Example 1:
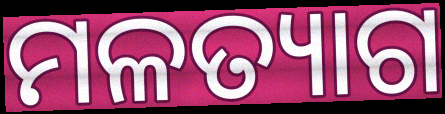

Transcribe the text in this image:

ମଳତ୍ୟାଗ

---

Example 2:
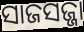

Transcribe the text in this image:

ସାଜସଜ୍ଜା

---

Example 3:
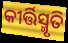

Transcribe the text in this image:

କୀର୍ତ୍ତିସ୍ମୃତି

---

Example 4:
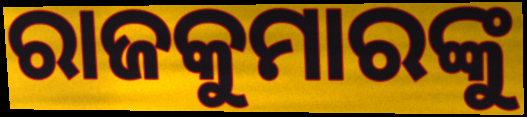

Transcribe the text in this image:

ରାଜକୁମାରଙ୍କୁ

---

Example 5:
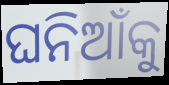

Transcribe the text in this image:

ଘନିଆଁକୁ